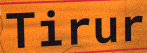
Tirur